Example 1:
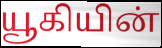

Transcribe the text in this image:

யூகியின்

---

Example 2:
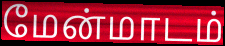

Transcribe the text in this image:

மேன்மாடம்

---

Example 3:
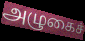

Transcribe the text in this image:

அழுகைச்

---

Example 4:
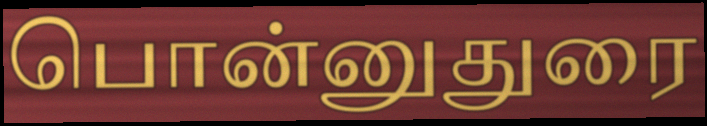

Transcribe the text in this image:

பொன்னுதுரை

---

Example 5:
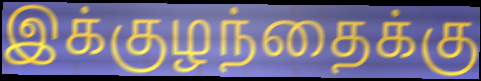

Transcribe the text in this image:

இக்குழந்தைக்கு